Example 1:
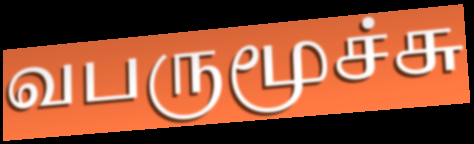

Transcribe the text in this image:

வபருமூச்சு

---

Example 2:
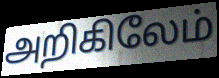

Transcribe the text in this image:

அறிகிலேம்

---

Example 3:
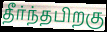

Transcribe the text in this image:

தீர்ந்தபிறகு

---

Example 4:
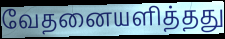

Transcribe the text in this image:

வேதனையளித்தது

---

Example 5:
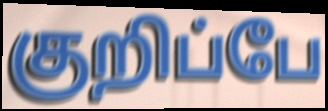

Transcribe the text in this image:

குறிப்பே